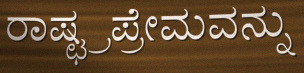
ರಾಷ್ಟ್ರಪ್ರೇಮವನ್ನು